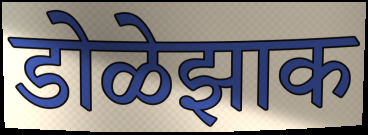
डोळेझाक